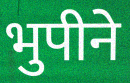
भुपीने